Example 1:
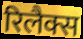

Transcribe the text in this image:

रिलैक्स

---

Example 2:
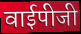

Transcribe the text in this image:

वाईपीजी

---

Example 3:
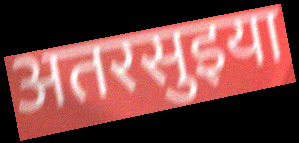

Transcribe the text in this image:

अतरसुइया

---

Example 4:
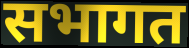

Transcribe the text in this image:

सभागत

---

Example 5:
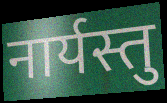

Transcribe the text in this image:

नार्यस्तु